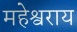
महेश्वराय